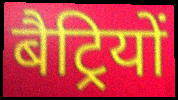
बैट्रियों